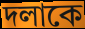
দলাকে